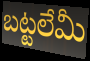
బట్టలేమీ